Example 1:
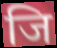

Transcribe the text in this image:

जि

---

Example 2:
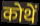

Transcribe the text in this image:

कोथें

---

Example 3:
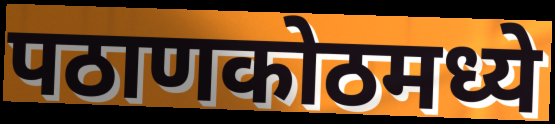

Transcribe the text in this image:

पठाणकोठमध्ये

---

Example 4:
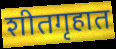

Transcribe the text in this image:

शीतगृहात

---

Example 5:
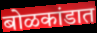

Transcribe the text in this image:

बोळकांडात